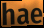
hae